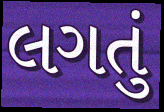
લગતું